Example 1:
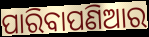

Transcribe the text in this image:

ପାରିବାପଣିଆର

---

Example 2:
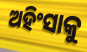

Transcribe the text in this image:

ଅହିଂସାକୁ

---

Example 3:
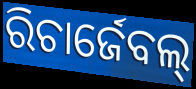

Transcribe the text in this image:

ରିଚାର୍ଜେବଲ୍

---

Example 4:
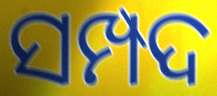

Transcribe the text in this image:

ସମ୍ପଦ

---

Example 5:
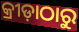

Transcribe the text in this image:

କ୍ରୀଡ଼ାଠାରୁ